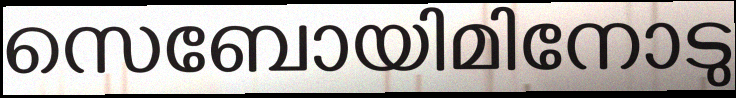
സെബോയിമിനോടു